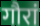
गौरां